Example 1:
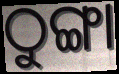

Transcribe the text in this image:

ଠୁଙ୍ଗା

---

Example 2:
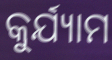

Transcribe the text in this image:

କୁର୍ଯ୍ୟାମ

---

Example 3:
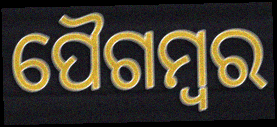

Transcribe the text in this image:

ପୈଗମ୍ବର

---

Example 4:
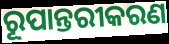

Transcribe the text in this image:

ରୂପାନ୍ତରୀକରଣ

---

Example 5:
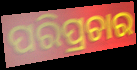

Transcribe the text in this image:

ପରିପ୍ରଚାର